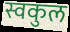
स्वकुल